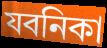
যবনিকা